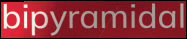
bipyramidal